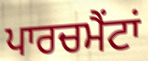
ਪਾਰਚਮੈਂਟਾਂ